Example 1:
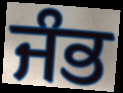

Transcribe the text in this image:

ਜੰਭ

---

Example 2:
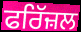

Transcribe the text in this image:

ਫਰਿੱਜ਼ਲ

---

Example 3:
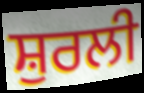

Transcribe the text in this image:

ਸ਼ੁਰਲੀ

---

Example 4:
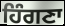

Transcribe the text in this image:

ਹਿੰਗਣਾ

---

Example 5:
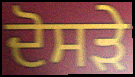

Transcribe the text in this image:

ਦੋਸੜੇ